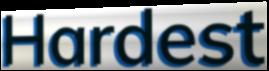
Hardest